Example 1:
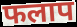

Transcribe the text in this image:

फलाप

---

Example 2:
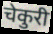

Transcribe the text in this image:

चेकुरी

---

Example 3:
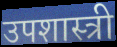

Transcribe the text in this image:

उपशास्त्री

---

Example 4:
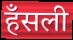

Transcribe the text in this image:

हँसली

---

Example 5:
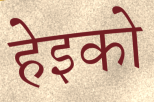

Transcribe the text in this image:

हेइको